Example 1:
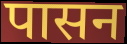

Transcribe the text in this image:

पासन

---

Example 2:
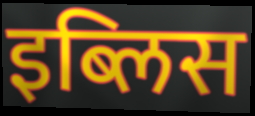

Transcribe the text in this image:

इब्लिस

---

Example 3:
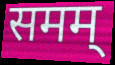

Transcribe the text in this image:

समम्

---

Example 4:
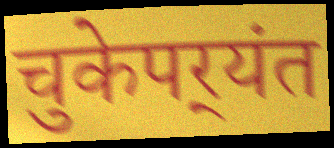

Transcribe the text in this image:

चुकेपर्यंत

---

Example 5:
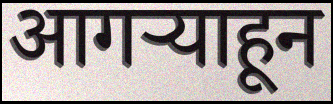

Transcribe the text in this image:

आगऱ्याहून